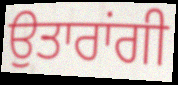
ਉਤਾਰਾਂਗੀ